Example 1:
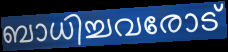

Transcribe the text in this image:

ബാധിച്ചവരോട്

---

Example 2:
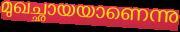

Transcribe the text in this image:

മുഖച്ഛായയാണെന്നു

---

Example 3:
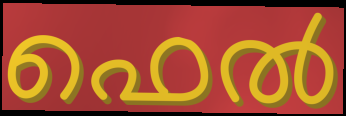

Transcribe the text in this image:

ഫെൽ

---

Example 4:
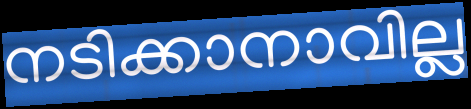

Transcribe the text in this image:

നടിക്കാനാവില്ല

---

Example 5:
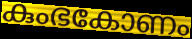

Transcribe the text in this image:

കുംഭകോണം